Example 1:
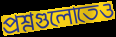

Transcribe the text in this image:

প্রশ্নগুলোতেও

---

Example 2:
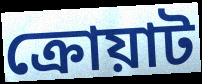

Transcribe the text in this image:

ক্রোয়াট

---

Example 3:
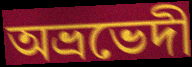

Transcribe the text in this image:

অভ্রভেদী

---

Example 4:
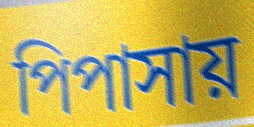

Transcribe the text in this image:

পিপাসায়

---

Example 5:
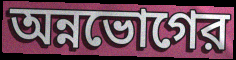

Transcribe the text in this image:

অন্নভোগের